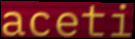
aceti